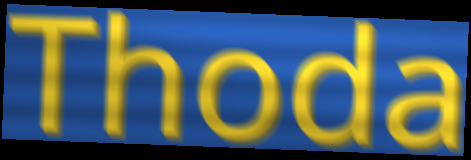
Thoda